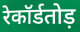
रेकॉर्डतोड़